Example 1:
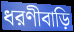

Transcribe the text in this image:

ধরণীবাড়ি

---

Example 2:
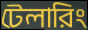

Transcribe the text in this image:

টেলারিং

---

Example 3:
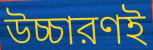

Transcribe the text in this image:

উচ্চারণই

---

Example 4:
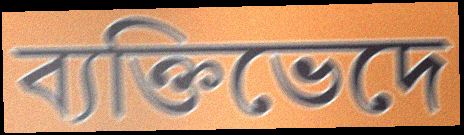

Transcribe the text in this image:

ব্যক্তিভেদে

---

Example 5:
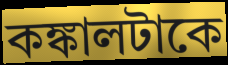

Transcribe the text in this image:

কঙ্কালটাকে